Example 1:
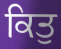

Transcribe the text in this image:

ਕਿਤੁ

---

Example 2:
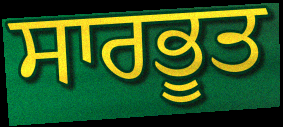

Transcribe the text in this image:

ਸਾਰਭੂਤ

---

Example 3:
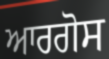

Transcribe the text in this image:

ਆਰਗੋਸ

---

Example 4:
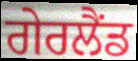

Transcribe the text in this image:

ਗੇਰਲੈਂਡ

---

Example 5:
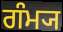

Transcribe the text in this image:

ਗੰਮ੍ਯ